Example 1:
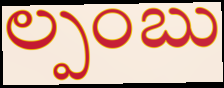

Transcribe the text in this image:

ల్పంబు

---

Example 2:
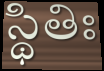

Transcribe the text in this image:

స్థితిః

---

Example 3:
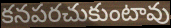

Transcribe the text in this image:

కనపరచుకుంటావు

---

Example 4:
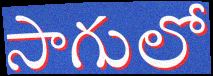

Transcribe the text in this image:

సాగులో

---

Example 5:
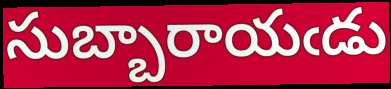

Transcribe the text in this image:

సుబ్బారాయఁడు